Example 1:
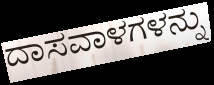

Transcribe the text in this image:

ದಾಸವಾಳಗಳನ್ನು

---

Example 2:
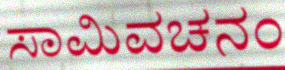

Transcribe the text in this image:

ಸಾಮಿವಚನಂ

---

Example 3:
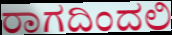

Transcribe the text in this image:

ರಾಗದಿಂದಲಿ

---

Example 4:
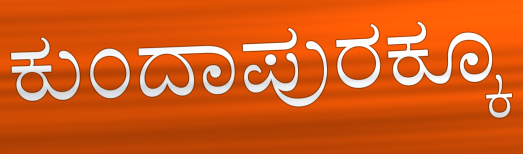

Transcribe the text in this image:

ಕುಂದಾಪುರಕ್ಕೂ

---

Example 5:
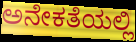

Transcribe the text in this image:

ಅನೇಕತೆಯಲ್ಲಿ